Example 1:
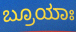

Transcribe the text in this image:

ಬ್ರೂಯಾಃ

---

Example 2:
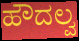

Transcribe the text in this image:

ಹೌದಲ್ವ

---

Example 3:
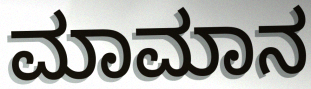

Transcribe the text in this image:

ಮಾಮಾನ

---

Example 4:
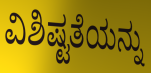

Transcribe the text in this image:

ವಿಶಿಷ್ಟತೆಯನ್ನು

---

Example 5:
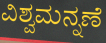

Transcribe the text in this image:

ವಿಶ್ವಮನ್ನಣೆ